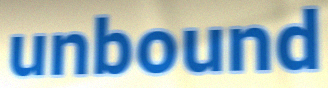
unbound